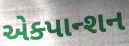
એક્પાન્શન